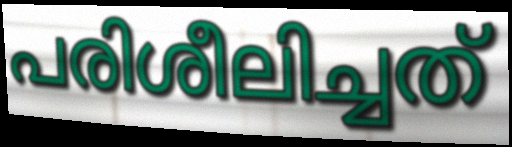
പരിശീലിച്ചത്